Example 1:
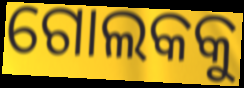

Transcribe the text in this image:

ଗୋଲକକୁ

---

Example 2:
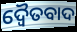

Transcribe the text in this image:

ଦ୍ୱୈତବାଦ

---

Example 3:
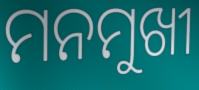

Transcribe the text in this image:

ମନମୁଖୀ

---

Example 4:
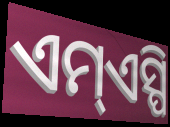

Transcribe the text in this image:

ଏମ୍ଏସ୍ପି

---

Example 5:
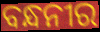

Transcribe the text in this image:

ବନ୍ଧନୀର